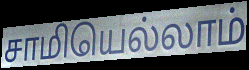
சாமியெல்லாம்